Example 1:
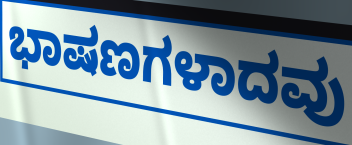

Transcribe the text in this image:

ಭಾಷಣಗಳಾದವು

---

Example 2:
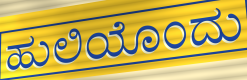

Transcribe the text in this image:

ಹುಲಿಯೊಂದು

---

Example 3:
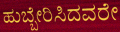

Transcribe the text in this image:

ಹುಬ್ಬೇರಿಸಿದವರೇ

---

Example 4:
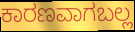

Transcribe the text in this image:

ಕಾರಣವಾಗಬಲ್ಲ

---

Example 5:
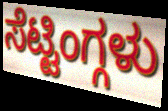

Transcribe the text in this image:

ಸೆಟ್ಟಿಂಗ್ಗಳು